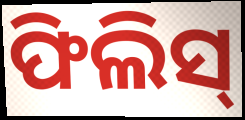
ଫିଲିସ୍